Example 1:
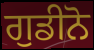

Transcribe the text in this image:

ਗੁਡੀਨੋ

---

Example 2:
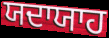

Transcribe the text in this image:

ਯਦਾਯਾਹ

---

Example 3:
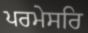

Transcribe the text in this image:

ਪਰਮੇਸਰਿ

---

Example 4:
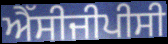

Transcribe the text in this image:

ਐੱਸੀਜੀਪੀਸੀ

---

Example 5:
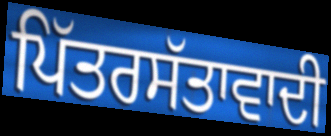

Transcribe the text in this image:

ਪਿੱਤਰਸੱਤਾਵਾਦੀ